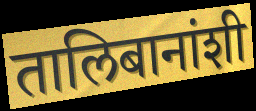
तालिबानांशी